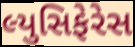
લ્યુસિફેરેસ